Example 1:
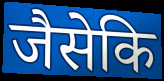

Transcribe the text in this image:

जैसेकि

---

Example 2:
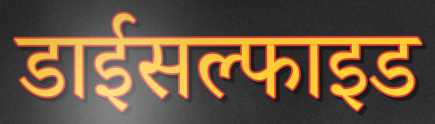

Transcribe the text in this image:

डाईसल्फाइड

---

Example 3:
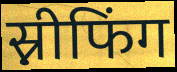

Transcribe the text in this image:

स्नीफिंग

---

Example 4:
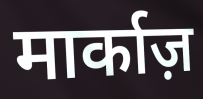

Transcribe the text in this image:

मार्काज़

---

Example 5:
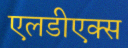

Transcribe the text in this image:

एलडीएक्स